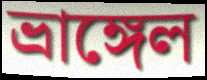
ভ্রাঙ্গেল